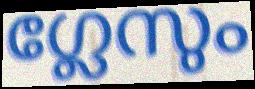
ഗ്ലേസും